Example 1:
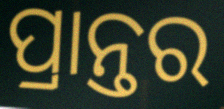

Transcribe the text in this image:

ପ୍ରାନ୍ତର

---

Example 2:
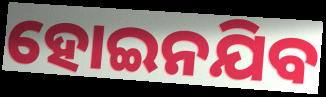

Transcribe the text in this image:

ହୋଇନଯିବ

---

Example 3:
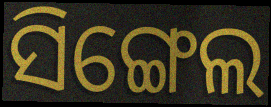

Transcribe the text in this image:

ସିଙ୍ଗେଲ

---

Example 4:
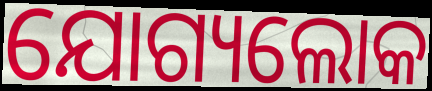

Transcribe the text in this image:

ଯୋଗ୍ୟଲୋକ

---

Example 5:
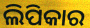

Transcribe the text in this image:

ଲିପିକାର